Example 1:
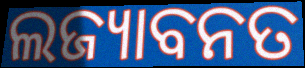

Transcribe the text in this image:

ଲଜ୍ୟାବନତ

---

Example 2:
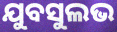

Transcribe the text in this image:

ଯୁବସୁଲଭ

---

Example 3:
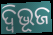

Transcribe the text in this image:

ଦ୍ବିଭୂଜ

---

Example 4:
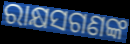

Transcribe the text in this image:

ରାକ୍ଷସଗଣଙ୍କ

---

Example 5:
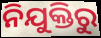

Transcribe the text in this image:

ନିଯୁକ୍ତିରୁ